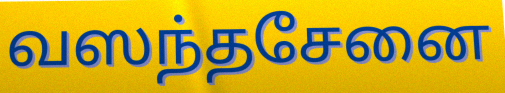
வஸந்தசேனை